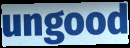
ungood